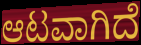
ಆಟವಾಗಿದೆ